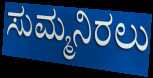
ಸುಮ್ಮನಿರಲು